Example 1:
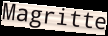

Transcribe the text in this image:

Magritte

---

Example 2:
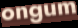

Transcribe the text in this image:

ongum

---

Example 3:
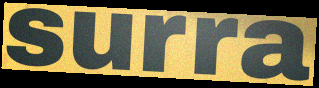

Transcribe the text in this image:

surra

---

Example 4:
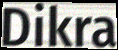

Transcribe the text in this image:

Dikra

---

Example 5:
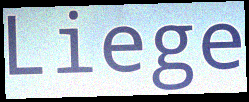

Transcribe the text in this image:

Liege